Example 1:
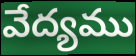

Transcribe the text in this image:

వేద్యము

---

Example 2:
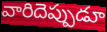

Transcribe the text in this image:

వారిదెప్పుడూ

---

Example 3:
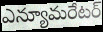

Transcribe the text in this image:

ఎన్యూమరేటర్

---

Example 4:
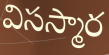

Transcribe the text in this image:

విసస్మార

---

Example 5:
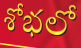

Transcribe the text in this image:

శోభలో